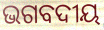
ଭଗବଦୀୟ